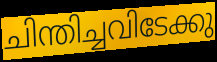
ചിന്തിച്ചവിടേക്കു